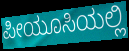
ಪೀಯೂಸಿಯಲ್ಲಿ